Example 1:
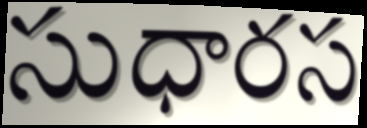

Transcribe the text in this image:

సుధారస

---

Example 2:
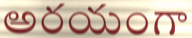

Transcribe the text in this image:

అరయంగా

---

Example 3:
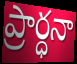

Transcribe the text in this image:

ప్రార్ధనా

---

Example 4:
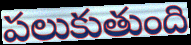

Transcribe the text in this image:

పలుకుతుంది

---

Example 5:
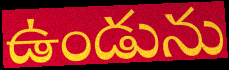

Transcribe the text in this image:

ఉండును